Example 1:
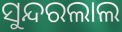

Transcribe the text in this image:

ସୁନ୍ଦରଲାଲ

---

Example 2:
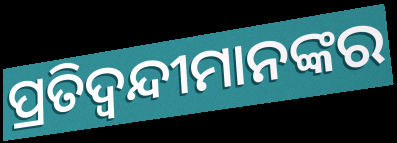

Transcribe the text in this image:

ପ୍ରତିଦ୍ୱନ୍ଦୀମାନଙ୍କର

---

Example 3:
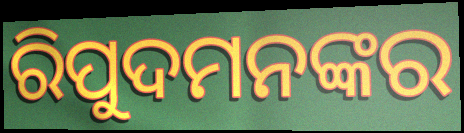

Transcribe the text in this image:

ରିପୁଦମନଙ୍କର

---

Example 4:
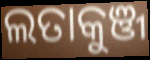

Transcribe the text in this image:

ଲତାକୁଞ୍ଜ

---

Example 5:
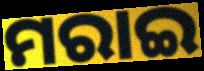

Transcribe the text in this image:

ମରାଇ